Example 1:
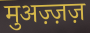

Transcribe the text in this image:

मुअज़्ज़ज़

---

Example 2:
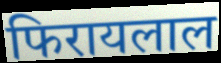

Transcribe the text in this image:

फिरायलाल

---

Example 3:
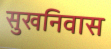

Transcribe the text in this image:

सुखनिवास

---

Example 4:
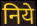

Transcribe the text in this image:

निये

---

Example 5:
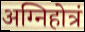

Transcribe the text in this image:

अग्निहोत्रं